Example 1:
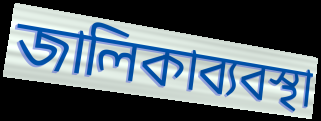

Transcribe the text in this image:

জালিকাব্যবস্থা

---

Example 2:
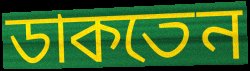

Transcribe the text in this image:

ডাকতেন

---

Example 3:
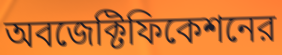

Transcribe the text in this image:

অবজেক্টিফিকেশনের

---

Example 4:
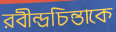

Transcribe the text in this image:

রবীন্দ্রচিন্তাকে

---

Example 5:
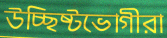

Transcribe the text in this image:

উচ্ছিষ্টভোগীরা